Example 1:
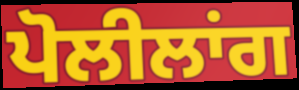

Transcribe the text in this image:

ਪੋਲੀਲਾਂਗ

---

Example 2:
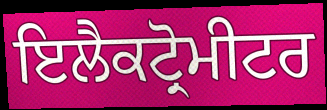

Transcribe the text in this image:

ਇਲੈਕਟ੍ਰੋਮੀਟਰ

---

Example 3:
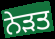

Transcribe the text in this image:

ਨੇੜਤ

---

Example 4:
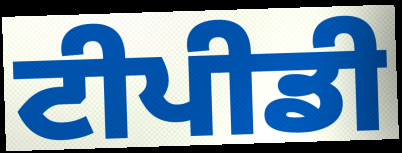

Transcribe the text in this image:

ਟੀਪੀਡੀ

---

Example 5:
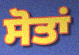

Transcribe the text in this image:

ਸੋਤਾਂ